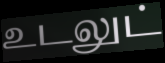
உடலுட்